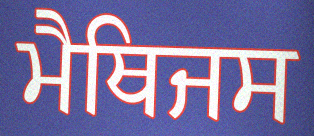
ਮੈਥਿਜਸ